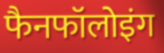
फैनफॉलोइंग